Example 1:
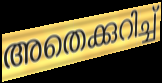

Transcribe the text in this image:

അതെക്കുറിച്ച്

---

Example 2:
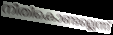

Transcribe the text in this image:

നീതികൊണ്ടല്ലെന്ന്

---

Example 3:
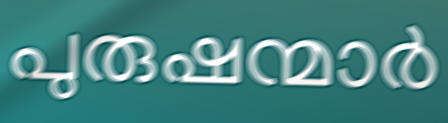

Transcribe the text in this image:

പുരുഷന്മാർ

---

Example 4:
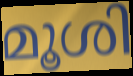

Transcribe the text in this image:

മൂശി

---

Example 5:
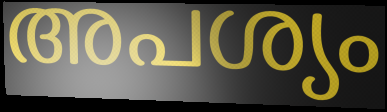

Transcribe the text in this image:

അപശ്യം